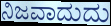
ನಿಜವಾದುದು